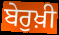
ਬੇਰੁਖ਼ੀ